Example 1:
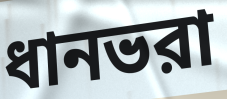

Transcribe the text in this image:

ধানভরা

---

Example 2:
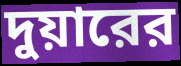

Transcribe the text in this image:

দুয়ারের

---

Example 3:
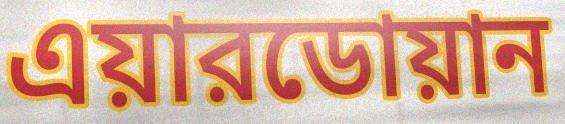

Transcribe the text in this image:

এয়ারডোয়ান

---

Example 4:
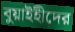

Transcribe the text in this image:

বুয়াইহীদের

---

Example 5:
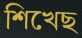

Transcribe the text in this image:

শিখেছ